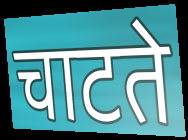
चाटते